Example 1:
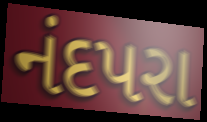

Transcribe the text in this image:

નંદપરા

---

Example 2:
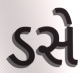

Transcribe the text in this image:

ડસે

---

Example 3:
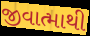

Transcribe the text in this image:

જીવાત્માથી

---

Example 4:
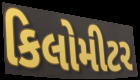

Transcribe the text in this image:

કિલોમીટર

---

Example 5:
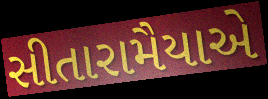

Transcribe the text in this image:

સીતારામૈયાએ